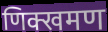
णिक्खमण